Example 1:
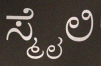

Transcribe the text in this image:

ಸ್ಮೈಲಿ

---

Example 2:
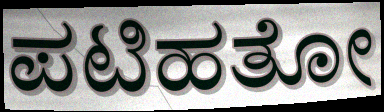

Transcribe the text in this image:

ಪಟಿಹತೋ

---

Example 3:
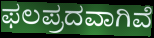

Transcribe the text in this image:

ಫಲಪ್ರದವಾಗಿವೆ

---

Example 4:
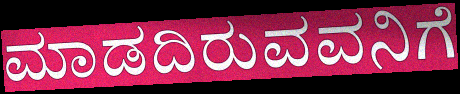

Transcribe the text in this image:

ಮಾಡದಿರುವವನಿಗೆ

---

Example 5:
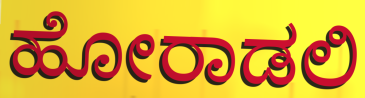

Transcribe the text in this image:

ಹೋರಾಡಲಿ